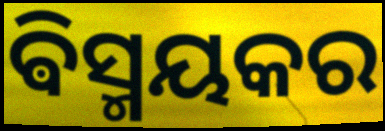
ଵିସ୍ମୟକର